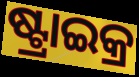
ଷ୍ଟ୍ରାଇକ୍ର